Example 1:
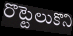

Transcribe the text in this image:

రొట్టెలుకొని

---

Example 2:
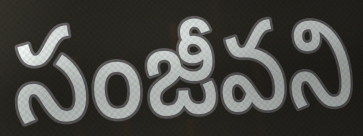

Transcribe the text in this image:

సంజీవని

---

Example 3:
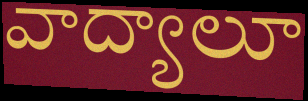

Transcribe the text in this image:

వాద్యాలూ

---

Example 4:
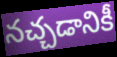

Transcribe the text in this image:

నచ్చడానికీ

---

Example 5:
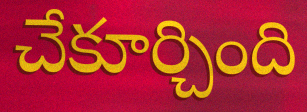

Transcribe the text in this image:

చేకూర్చింది